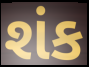
શંક